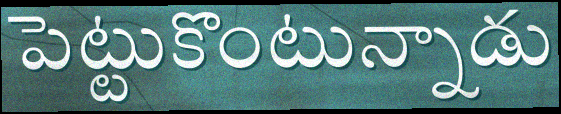
పెట్టుకొంటున్నాడు